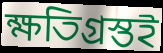
ক্ষতিগ্রস্তই